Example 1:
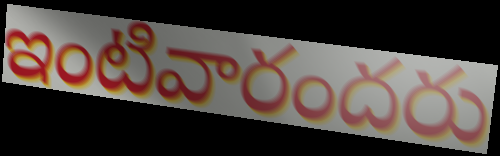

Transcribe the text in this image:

ఇంటివారందరు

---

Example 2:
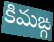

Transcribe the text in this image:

కిమఙ్గ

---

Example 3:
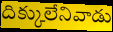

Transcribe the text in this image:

దిక్కులేనివాడు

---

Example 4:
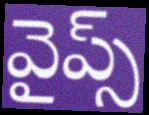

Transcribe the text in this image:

వైప్స్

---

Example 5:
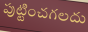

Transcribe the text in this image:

పుట్టించగలదు